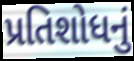
પ્રતિશોધનું